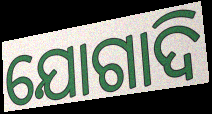
ଯୋଗାଦି